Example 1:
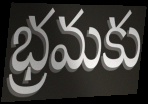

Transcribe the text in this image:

భ్రమకు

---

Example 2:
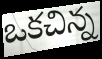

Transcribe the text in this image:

ఒకచిన్న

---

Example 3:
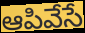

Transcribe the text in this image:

ఆపివేసే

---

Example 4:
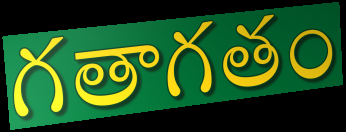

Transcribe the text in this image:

గతాగతం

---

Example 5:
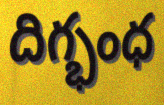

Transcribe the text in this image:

దిగ్భంధ